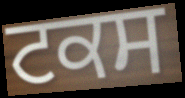
ਟਕਸ